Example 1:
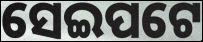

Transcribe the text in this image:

ସେଇପଟେ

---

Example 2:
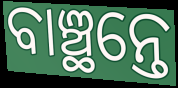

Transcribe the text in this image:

ବାଞ୍ଛନ୍ତେ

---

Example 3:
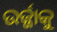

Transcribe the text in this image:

ଉର୍ଜ୍ଜାକୁ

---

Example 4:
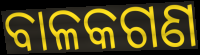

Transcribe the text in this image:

ବାଳକଗଣ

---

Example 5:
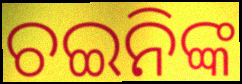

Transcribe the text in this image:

ଚଇନିଙ୍କ